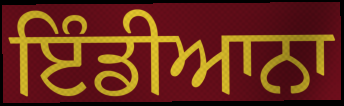
ਇੰਡੀਆਨਾ